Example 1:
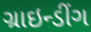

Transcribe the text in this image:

ગ્રાઇન્ડીંગ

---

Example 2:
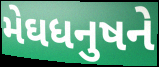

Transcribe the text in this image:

મેઘધનુષને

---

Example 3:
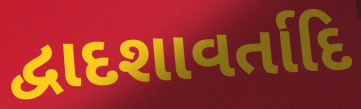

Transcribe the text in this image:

દ્વાદશાવર્તાદિ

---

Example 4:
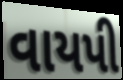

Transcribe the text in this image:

વાયપી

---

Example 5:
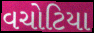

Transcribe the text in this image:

વચોટિયા